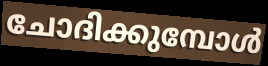
ചോദിക്കുമ്പോൾ